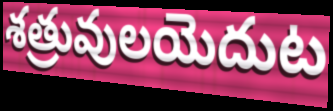
శత్రువులయెదుట